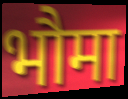
भौमा